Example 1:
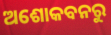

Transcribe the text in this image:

ଅଶୋକବନରୁ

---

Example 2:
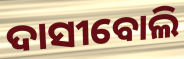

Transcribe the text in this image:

ଦାସୀବୋଲି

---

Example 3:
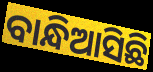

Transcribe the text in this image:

ବାନ୍ଧିଆସିଛି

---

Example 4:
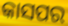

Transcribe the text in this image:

କାସପର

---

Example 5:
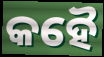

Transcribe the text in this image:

କହୈ